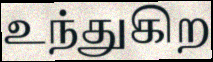
உந்துகிற